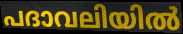
പദാവലിയിൽ